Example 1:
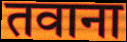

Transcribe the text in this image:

तवाना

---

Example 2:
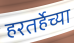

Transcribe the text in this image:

हरतर्हेच्या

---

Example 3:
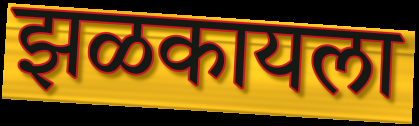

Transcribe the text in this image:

झळकायला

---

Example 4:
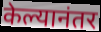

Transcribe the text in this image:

केल्यानंतर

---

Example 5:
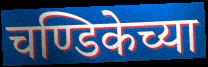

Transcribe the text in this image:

चण्डिकेच्या